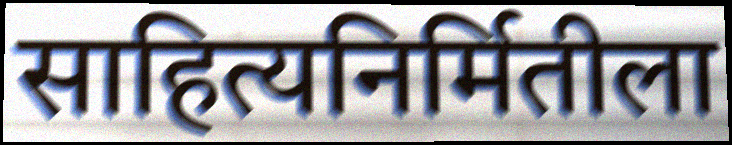
साहित्यनिर्मितीला